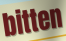
bitten